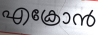
എക്രോൻ